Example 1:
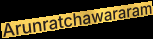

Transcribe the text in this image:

Arunratchawararam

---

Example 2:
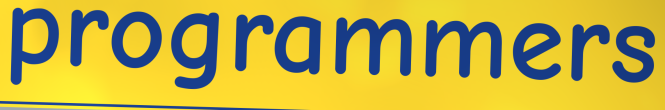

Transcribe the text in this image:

programmers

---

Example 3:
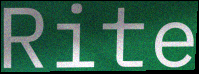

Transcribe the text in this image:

Rite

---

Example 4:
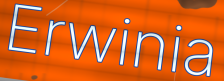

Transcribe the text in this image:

Erwinia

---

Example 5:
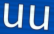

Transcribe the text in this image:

uu